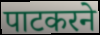
पाटकरने